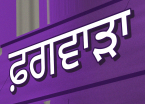
ਫ਼ਗਵਾੜਾ